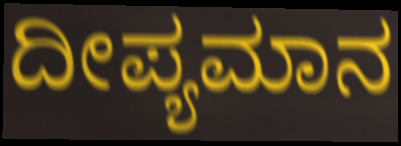
ದೀಪ್ಯಮಾನ